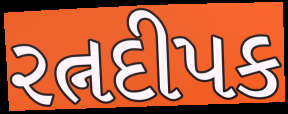
રત્નદીપક